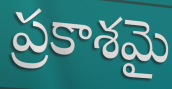
ప్రకాశమై